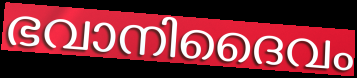
ഭവാനിദൈവം